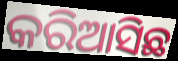
କରିଆସିଛ